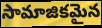
సామాజికమైన